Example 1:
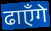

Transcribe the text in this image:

ढाएँगे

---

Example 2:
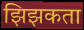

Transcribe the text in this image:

झिझकता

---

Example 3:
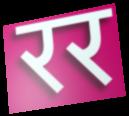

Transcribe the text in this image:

रर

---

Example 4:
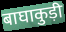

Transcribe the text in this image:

बाघाकुड़ी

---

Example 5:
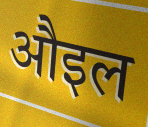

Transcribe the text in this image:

औइल